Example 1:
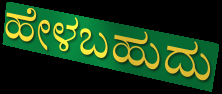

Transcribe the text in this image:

ಹೇಳಬಹುದು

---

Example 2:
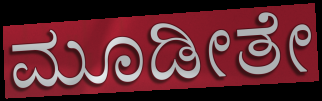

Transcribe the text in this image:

ಮೂಡೀತೇ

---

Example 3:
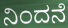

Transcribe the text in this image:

ನಿಂದನೆ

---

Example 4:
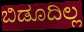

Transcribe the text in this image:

ಬಿಡೂದಿಲ್ಲ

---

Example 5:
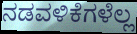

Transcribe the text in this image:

ನಡವಳಿಕೆಗಳೆಲ್ಲ